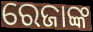
ରେଜାଙ୍କ